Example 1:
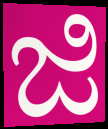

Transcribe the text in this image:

ಜಿ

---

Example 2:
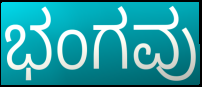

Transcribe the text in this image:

ಭಂಗವು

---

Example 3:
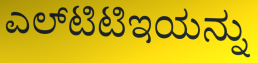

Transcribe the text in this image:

ಎಲ್‌ಟಿಟಿಇಯನ್ನು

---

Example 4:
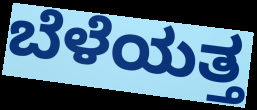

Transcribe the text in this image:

ಬೆಳೆಯತ್ತ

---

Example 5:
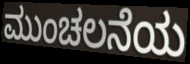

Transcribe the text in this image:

ಮುಂಚಲನೆಯ